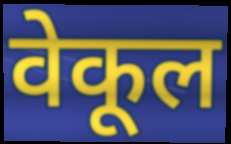
वेकूल